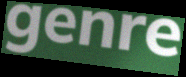
genre